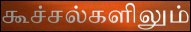
கூச்சல்களிலும்